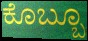
ಕೊಬ್ಬೂ